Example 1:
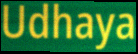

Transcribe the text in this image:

Udhaya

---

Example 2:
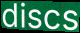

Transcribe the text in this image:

discs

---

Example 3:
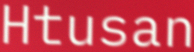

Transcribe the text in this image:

Htusan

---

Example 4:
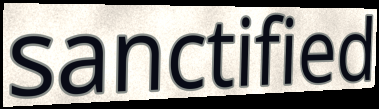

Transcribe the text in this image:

sanctified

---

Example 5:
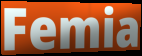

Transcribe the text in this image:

Femia